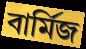
বার্মিজ